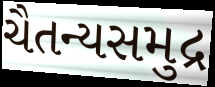
ચૈતન્યસમુદ્ર